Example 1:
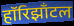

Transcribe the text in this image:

हॉरिझाँटल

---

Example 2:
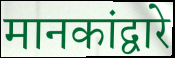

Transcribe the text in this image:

मानकांद्वारे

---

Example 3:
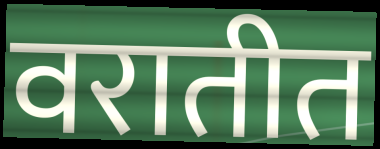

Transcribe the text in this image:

वरातीत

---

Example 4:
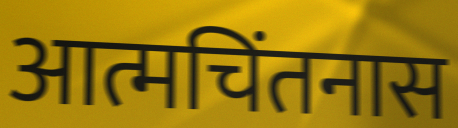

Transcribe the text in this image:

आत्मचिंतनास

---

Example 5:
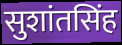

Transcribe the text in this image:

सुशांतसिंह